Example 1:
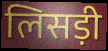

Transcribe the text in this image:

लिसड़ी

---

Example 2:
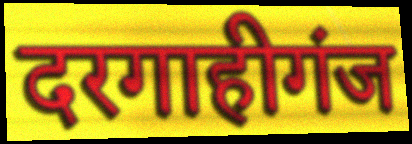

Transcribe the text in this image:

दरगाहीगंज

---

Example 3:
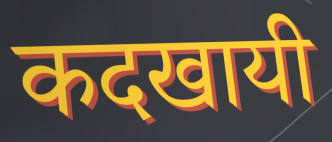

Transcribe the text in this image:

कदखायी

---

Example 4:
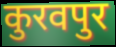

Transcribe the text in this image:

कुरवपुर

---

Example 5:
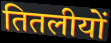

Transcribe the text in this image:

तितलीयों